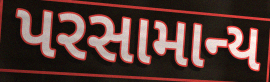
પરસામાન્ય